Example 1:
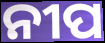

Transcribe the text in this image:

ନୀପ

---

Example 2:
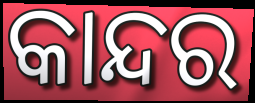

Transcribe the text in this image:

କାନ୍ଦର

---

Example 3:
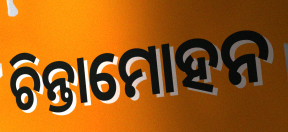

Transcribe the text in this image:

ଚିନ୍ତାମୋହନ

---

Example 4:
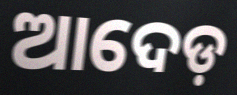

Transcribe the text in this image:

ଆଦେଡ଼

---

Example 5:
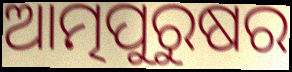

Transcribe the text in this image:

ଆତ୍ମପୁରୁଷର